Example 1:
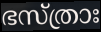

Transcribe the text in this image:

ഭസ്ത്രാഃ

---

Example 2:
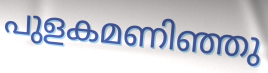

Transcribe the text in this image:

പുളകമണിഞ്ഞു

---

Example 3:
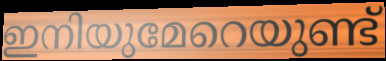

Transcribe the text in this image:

ഇനിയുമേറെയുണ്ട്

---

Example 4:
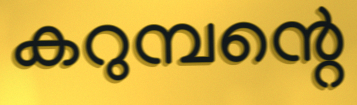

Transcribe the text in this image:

കറുമ്പന്റെ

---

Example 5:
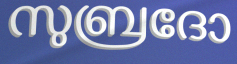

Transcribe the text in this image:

സുബ്രദോ